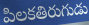
పిలకతిరుగుడు